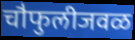
चौफुलीजवळ